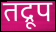
तद्रूप